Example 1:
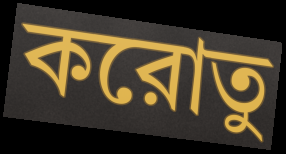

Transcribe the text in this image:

করোতু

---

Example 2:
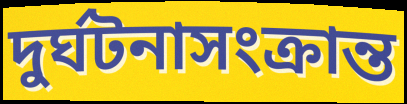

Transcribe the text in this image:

দুর্ঘটনাসংক্রান্ত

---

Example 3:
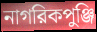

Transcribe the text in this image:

নাগরিকপুঞ্জি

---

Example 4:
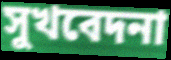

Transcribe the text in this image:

সুখবেদনা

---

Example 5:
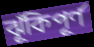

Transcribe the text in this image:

ঝূঁকিপূর্ণ